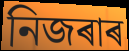
নিজৰাৰ